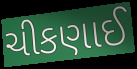
ચીકણાઈ